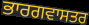
ਭਾਰਗਵਾਸਤਰ